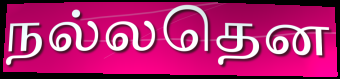
நல்லதென